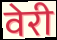
वेरी